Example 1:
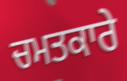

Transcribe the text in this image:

ਚਮਤਕਾਰੇ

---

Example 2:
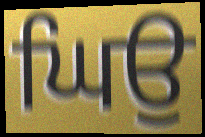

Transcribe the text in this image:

ਘਿਉ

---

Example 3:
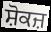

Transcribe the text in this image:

ਸ਼ੋਕਜ਼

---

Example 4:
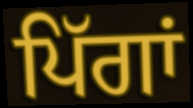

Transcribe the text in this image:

ਪਿੱਗਾਂ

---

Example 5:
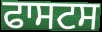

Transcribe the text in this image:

ਫਾਸਟਸ